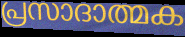
പ്രസാദാത്മക